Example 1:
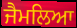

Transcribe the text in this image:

ਜੈਮਲਿਆ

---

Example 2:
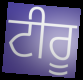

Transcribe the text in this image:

ਟੀਰੂ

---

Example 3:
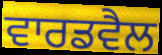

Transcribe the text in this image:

ਵਾਰਡਵੈਲ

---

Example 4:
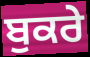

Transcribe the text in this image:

ਬੁਕਰੇ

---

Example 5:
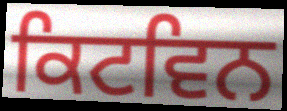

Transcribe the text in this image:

ਕਿਟਵਿਨ